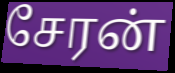
சேரன்